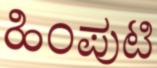
ಹಿಂಪುಟಿ